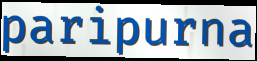
paripurna